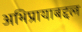
अभिप्रायाबद्दल